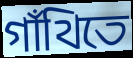
গাঁথিতে